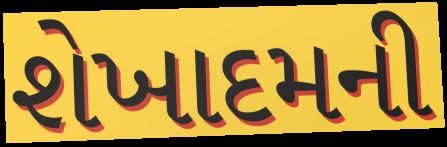
શેખાદમની